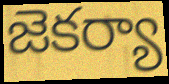
జెకర్యా